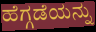
ಹೆಗ್ಗಡೆಯನ್ನು